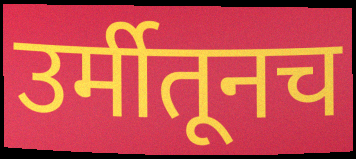
उर्मीतूनच